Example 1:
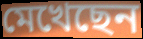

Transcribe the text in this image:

মেখেছেন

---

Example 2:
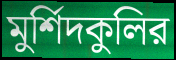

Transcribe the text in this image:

মুর্শিদকুলির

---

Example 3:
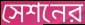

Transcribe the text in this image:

সেশনের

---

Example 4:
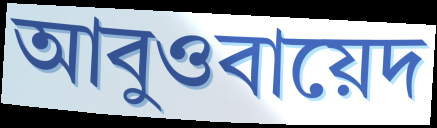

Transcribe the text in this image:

আবুওবায়েদ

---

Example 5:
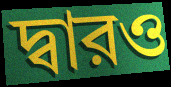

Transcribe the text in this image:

দ্বারও